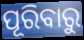
ପୂରିବାରୁ